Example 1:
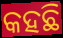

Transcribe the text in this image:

କହଛି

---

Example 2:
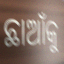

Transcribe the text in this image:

ଛାଆଁକୁ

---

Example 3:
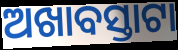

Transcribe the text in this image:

ଅଖାବସ୍ତାଟା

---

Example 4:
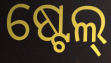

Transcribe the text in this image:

ଷ୍ଟେଲ୍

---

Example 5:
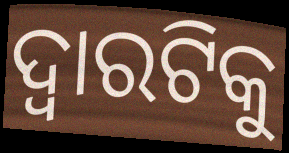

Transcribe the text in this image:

ଦ୍ଵାରଟିକୁ